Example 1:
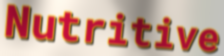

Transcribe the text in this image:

Nutritive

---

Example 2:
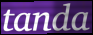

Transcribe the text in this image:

tanda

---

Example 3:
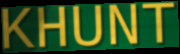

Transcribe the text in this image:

KHUNT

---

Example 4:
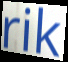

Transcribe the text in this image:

rik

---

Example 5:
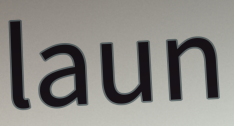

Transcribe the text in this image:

laun